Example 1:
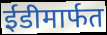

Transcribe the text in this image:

ईडीमार्फत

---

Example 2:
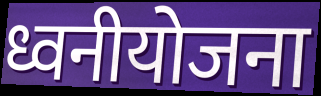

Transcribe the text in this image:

ध्वनीयोजना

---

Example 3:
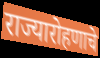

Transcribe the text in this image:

राज्यारोहणाचे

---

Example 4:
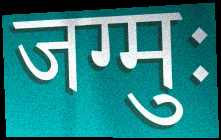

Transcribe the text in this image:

जग्मुः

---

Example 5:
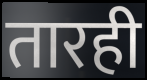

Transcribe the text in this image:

तारही